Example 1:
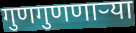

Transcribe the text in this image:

गुणगुणणाऱ्या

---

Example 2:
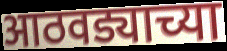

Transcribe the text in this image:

आठवड्याच्या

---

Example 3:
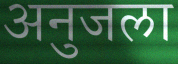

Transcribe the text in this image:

अनुजला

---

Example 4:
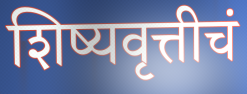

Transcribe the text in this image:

शिष्यवृत्तीचं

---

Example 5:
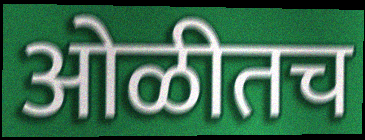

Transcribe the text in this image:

ओळीतच